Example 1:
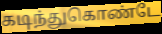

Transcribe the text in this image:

கடிந்துகொண்டே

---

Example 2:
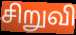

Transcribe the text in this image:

சிறுவி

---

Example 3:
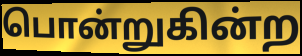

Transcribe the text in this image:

பொன்றுகின்ற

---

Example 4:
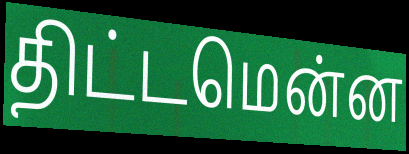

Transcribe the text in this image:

திட்டமென்ன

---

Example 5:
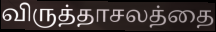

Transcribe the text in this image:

விருத்தாசலத்தை